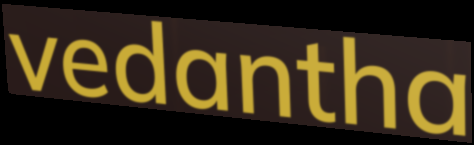
vedantha